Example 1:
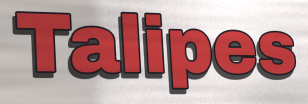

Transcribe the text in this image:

Talipes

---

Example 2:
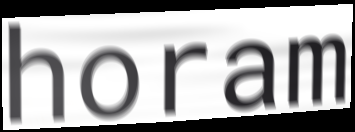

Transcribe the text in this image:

horam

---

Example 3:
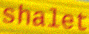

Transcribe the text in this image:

shalet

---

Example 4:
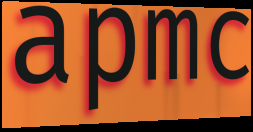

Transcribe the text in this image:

apmc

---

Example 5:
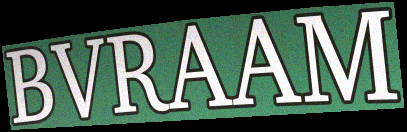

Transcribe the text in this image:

BVRAAM